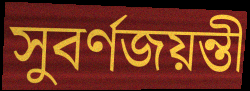
সুবর্ণজয়ন্তী